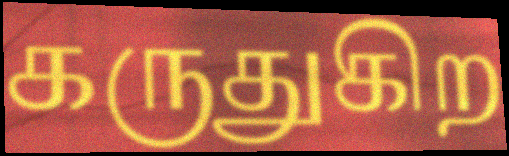
கருதுகிற